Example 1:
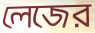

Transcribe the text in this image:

লেজের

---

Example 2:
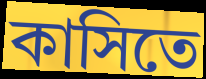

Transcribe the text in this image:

কাসিতে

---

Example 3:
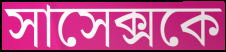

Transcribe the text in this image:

সাসেক্সকে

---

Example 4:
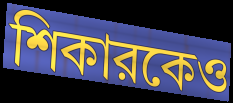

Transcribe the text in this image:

শিকারকেও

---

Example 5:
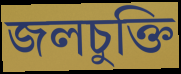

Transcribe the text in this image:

জলচুক্তি